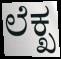
ಲೆಕ್ಖ